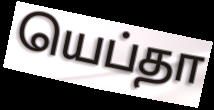
யெப்தா